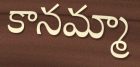
కానమ్మా